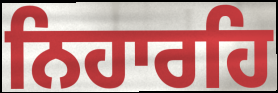
ਨਿਹਾਰਹਿ